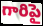
గారిపై